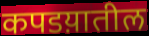
कपडय़ातील